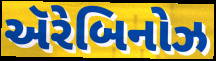
ઍરેબિનોઝ